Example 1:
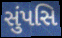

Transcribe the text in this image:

સુંપસિ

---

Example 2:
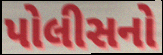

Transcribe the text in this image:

પોલીસનો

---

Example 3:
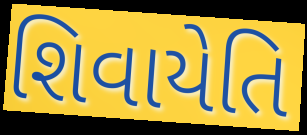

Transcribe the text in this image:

શિવાયેતિ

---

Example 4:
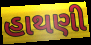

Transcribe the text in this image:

હાથણી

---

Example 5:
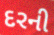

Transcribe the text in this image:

દરની